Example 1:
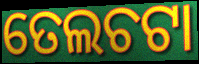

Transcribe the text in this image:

ତେଲଚଟା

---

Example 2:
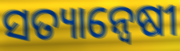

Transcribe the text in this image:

ସତ୍ୟାନ୍ଵେଷୀ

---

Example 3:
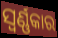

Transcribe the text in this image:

ସ୍ୱର୍ଣ୍ଣକାର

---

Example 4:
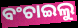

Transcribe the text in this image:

ବଂଚାଇଲୁ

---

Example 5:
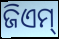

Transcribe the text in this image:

ଜିଏମ୍